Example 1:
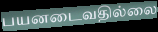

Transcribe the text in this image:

பயனடைவதில்லை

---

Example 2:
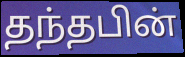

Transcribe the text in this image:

தந்தபின்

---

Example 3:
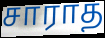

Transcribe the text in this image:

சாராத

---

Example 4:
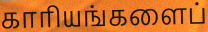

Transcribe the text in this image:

காரியங்களைப்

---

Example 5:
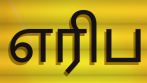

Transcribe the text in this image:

எரிப